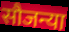
सौजन्या